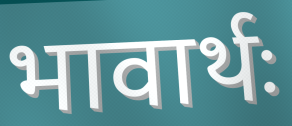
भावार्थः